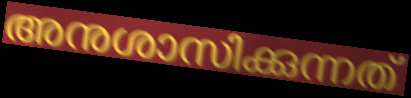
അനുശാസിക്കുന്നത്